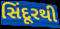
સિંદૂરથી